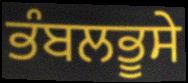
ਭੰਬਲਭੂਸੇ